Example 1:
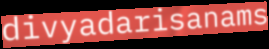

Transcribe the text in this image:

divyadarisanams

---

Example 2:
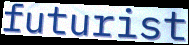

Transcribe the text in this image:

futurist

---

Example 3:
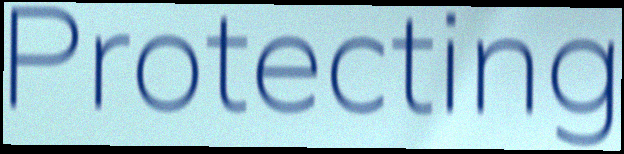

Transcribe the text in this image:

Protecting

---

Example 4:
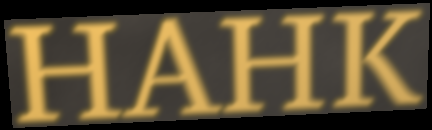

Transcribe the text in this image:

HAHK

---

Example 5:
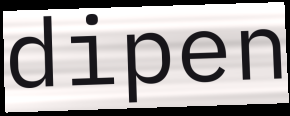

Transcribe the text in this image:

dipen